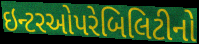
ઇન્ટરઓપરેબિલિટીનો